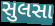
સુલસા